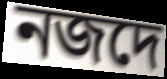
নজদে